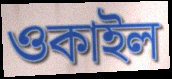
ওকাইল